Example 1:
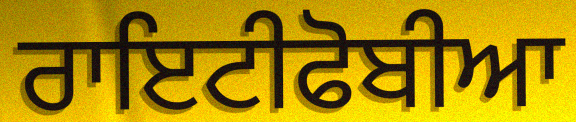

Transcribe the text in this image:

ਰਾਇਟੀਫੋਬੀਆ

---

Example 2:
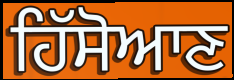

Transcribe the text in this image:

ਹਿੱਸੋਆਣ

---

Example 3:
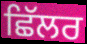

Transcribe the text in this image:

ਛਿੱਲਰ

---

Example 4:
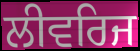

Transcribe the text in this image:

ਲੀਵਰਿਜ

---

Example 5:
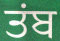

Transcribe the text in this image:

ਤਂਬ